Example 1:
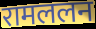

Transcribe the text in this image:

रामललन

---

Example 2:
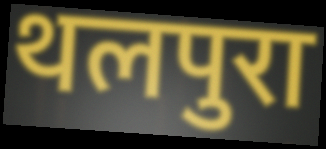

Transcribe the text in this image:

थलपुरा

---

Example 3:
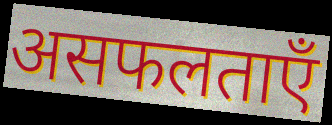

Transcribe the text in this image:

असफलताएँ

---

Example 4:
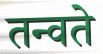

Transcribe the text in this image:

तन्वते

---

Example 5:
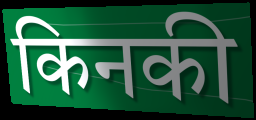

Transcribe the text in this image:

किनकी